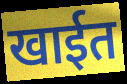
खाईत